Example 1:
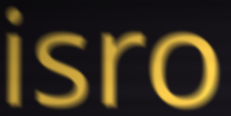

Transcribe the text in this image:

isro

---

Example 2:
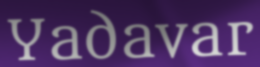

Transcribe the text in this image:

Yadavar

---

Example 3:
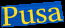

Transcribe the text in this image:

Pusa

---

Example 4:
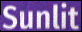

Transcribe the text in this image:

Sunlit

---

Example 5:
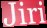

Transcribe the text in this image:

Jiri